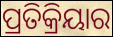
ପ୍ରତିକ୍ରିୟାର